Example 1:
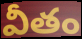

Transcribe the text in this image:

వీతం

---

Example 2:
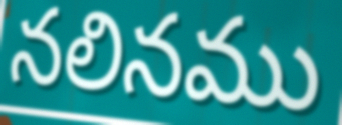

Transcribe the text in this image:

నలినము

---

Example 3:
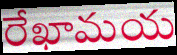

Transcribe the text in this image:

రేఖామయ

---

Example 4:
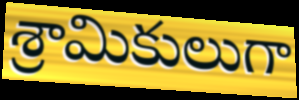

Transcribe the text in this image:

శ్రామికులుగా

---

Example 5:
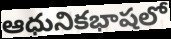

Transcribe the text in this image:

ఆధునికభాషలో